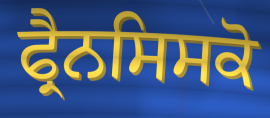
ਫ੍ਰੈਨਸਿਸਕੋ